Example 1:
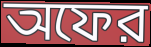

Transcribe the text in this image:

অফের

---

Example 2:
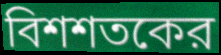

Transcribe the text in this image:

বিশশতকের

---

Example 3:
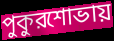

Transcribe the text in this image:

পুকুরশোভায়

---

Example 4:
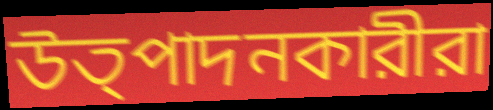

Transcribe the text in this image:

উত্পাদনকারীরা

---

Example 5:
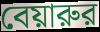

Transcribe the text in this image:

বেয়ারুর